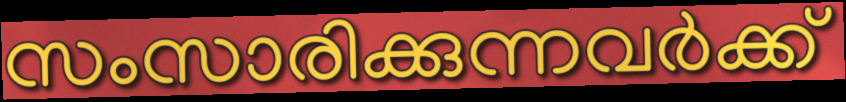
സംസാരിക്കുന്നവർക്ക്